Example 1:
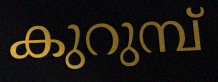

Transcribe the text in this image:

കുറുമ്പ്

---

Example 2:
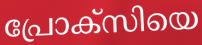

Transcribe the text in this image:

പ്രോക്സിയെ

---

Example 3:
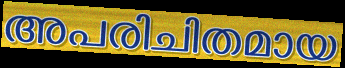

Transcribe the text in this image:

അപരിചിതമായ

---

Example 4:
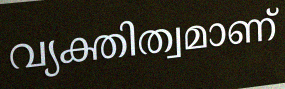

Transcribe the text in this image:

വ്യക്തിത്വമാണ്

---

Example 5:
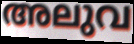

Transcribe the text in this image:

അലുവ